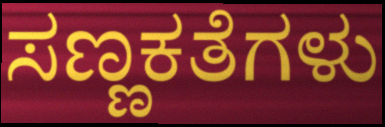
ಸಣ್ಣಕತೆಗಳು